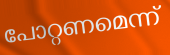
പോറ്റണമെന്ന്